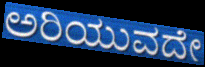
ಅರಿಯುವದೇ